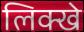
लिक्खे